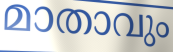
മാതാവും